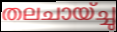
തലചായ്ച്ചു